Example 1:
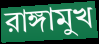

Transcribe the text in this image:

রাঙ্গামুখ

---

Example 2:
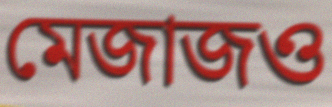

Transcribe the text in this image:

মেজাজও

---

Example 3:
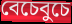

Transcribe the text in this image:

বেচেবুচে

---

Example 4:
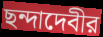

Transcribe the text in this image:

ছন্দাদেবীর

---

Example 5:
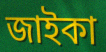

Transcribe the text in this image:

জাইকা